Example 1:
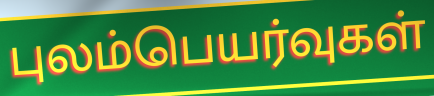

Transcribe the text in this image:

புலம்பெயர்வுகள்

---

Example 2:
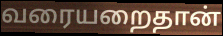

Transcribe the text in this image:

வரையறைதான்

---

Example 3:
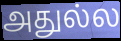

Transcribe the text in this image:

அதுல்ல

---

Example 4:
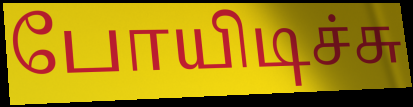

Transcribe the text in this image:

போயிடிச்சு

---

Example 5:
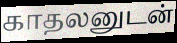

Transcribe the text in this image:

காதலனுடன்